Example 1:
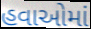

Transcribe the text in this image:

હવાઓમાં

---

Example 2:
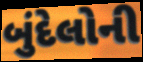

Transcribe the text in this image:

બુંદેલોની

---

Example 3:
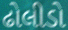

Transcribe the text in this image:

ઢોલીડો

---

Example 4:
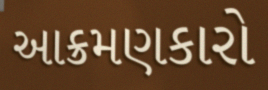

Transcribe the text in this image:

આક્રમણકારો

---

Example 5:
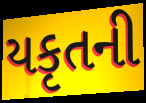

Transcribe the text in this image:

યકૃતની